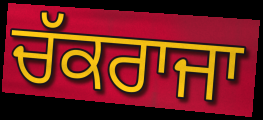
ਚੱਕਰਾਜਾ